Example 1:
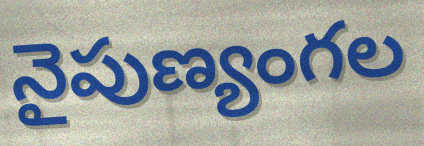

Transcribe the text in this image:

నైపుణ్యంగల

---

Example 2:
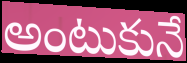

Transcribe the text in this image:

అంటుకునే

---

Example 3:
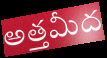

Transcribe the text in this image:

అత్తమీద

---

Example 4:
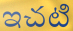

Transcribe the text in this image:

ఇచటి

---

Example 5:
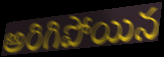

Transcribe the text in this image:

అరిగిపోయిన